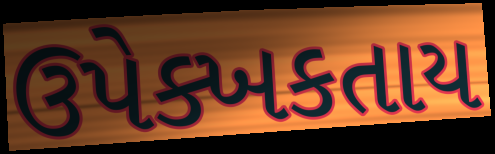
ઉપેક્ખકતાય